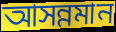
আসন্নমান